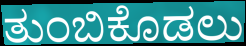
ತುಂಬಿಕೊಡಲು